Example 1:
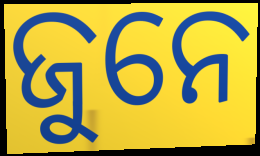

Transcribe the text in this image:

ଜୁନେ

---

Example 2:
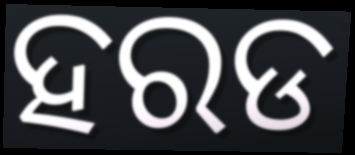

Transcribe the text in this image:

ହରଡ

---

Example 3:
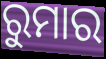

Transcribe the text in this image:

ରୁମାର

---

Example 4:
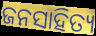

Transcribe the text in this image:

ଜନସାହିତ୍ୟ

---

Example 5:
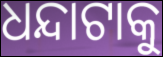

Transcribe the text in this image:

ଧନ୍ଦାଟାକୁ